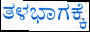
ತಳಭಾಗಕ್ಕೆ